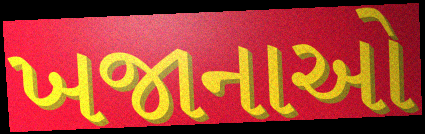
ખજાનાઓ